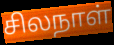
சிலநாள்